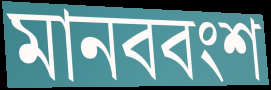
মানববংশ